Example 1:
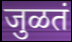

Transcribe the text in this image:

जुळतं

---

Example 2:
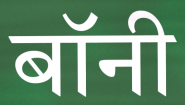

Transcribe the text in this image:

बॉनी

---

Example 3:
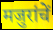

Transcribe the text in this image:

मजुरांचें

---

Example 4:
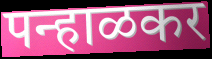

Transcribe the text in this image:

पन्हाळकर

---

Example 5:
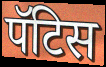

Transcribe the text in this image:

पॅटिस